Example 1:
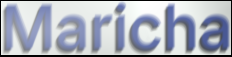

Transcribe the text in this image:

Maricha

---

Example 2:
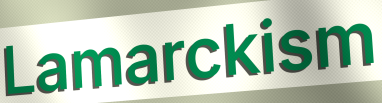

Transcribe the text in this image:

Lamarckism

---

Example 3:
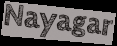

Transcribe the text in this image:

Nayagar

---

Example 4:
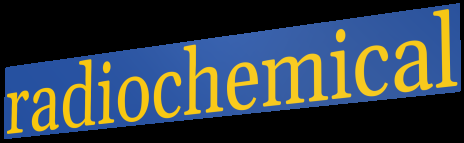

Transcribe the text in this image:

radiochemical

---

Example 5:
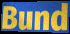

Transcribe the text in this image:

Bund